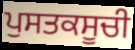
ਪੁਸਤਕਸੂਚੀ